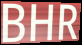
BHR